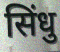
सिंधु